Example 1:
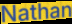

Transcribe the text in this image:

Nathan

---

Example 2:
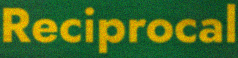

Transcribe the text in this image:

Reciprocal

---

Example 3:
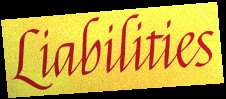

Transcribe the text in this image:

Liabilities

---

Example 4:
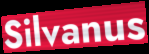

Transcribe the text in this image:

Silvanus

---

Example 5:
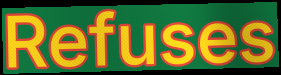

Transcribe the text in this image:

Refuses